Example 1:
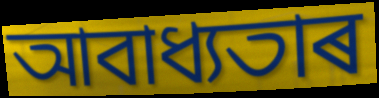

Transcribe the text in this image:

আবাধ্যতাৰ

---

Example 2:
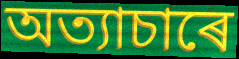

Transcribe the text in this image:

অত্যাচাৰে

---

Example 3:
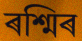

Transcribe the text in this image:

ৰশ্মিৰ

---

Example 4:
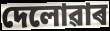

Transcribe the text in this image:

দেলোৱাৰ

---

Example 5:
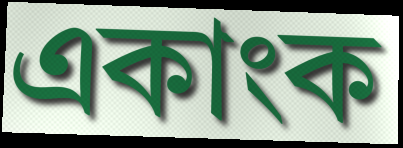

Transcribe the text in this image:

একাংক